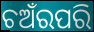
ଚଅଁରପରି